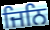
ਜਿਨਿ